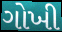
ગોખી